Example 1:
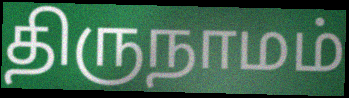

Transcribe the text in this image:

திருநாமம்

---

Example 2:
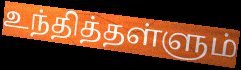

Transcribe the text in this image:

உந்தித்தள்ளும்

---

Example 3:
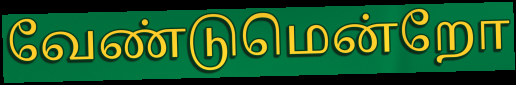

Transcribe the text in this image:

வேண்டுமென்றோ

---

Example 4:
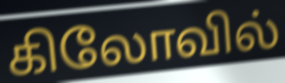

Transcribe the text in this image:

கிலோவில்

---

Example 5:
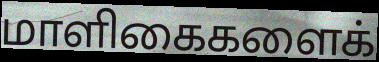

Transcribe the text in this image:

மாளிகைகளைக்